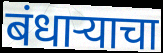
बंधार्‍याचा